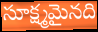
సూక్ష్మమైనది